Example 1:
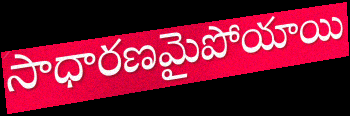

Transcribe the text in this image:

సాధారణమైపోయాయి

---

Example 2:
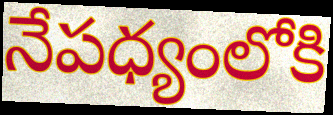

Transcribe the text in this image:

నేపధ్యంలోకి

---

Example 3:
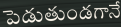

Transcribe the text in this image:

పెడుతుండగానే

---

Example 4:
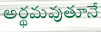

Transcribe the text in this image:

అర్థమవుతూనే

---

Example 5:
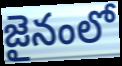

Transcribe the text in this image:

జైనంలో